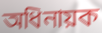
অধিনায়ক